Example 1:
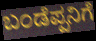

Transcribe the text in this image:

ಬಂಡೆಪ್ಪನಿಗೆ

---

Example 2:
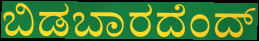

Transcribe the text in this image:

ಬಿಡಬಾರದೆಂದ್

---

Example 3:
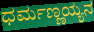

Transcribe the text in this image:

ಧರ್ಮಣ್ಣಯ್ಯನ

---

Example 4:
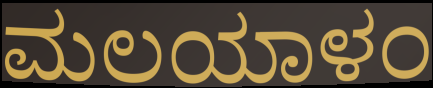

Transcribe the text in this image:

ಮಲಯಾಳಂ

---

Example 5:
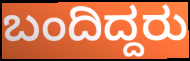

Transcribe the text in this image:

ಬಂದಿದ್ದರು